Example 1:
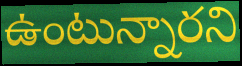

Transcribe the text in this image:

ఉంటున్నారని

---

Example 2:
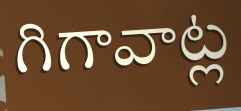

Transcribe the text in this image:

గిగావాట్ల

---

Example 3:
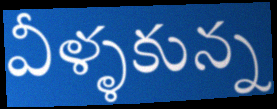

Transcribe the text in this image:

వీళ్ళకున్న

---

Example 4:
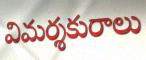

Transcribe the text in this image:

విమర్శకురాలు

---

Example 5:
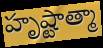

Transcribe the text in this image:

హృష్టాత్మా